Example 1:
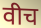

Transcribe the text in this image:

वीच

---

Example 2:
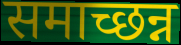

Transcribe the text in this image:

समाच्छन्न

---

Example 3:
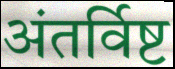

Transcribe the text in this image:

अंतर्विष्ट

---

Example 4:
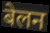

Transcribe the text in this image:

बेलन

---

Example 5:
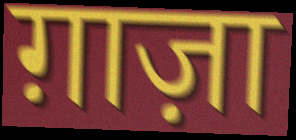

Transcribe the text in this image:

ग़ाज़ा